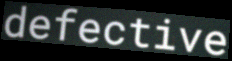
defective